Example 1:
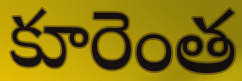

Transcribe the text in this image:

కూరెంత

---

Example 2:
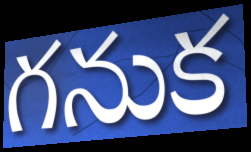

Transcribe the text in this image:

గనుక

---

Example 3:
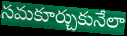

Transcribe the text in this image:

సమకూర్చుకునేలా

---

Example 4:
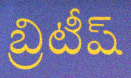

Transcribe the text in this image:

బ్రిటీష్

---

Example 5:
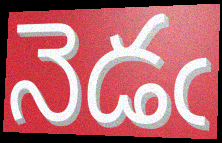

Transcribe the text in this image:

నెడఁ